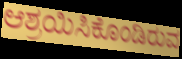
ಆಶ್ರಯಿಸಿಕೊಂಡಿರುವ